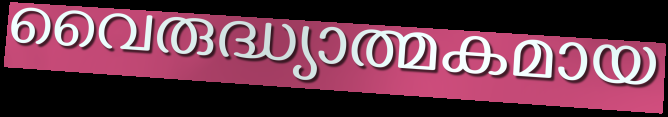
വൈരുദ്ധ്യാത്മകമായ